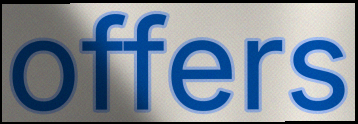
offers